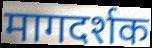
मागदर्शक